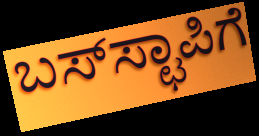
ಬಸ್‌ಸ್ಟಾಪಿಗೆ